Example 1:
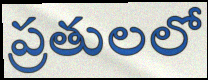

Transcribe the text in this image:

ప్రతులలో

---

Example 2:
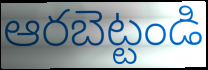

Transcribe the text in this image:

ఆరబెట్టండి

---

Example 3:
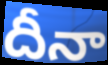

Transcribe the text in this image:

దీనా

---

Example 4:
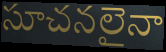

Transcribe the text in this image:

సూచనలైనా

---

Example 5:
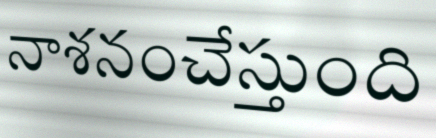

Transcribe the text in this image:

నాశనంచేస్తుంది